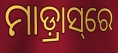
ମାଡ଼୍ରାସ୍‌ରେ